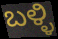
ಬಳ್ಳಿ